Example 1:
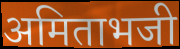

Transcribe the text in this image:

अमिताभजी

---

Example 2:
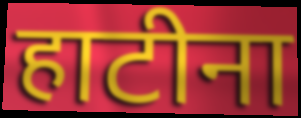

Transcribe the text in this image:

हाटीना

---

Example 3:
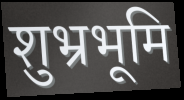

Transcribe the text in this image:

शुभ्रभूमि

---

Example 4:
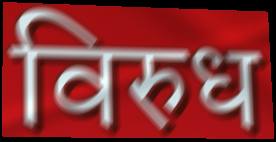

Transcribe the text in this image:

विरुध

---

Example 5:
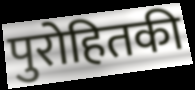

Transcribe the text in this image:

पुरोहितकी